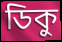
ডিকু